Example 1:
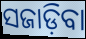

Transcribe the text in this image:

ସଜାଡ଼ିବା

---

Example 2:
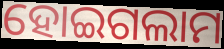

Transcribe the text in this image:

ହୋଇଗଲାମ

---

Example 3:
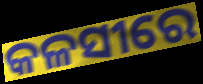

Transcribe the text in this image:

କଳସୀରେ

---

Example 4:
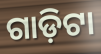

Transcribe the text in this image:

ଗାଡ଼ିଟା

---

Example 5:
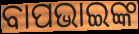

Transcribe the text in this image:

ବାପଭାଇଙ୍କ